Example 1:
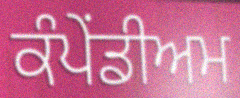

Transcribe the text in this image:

ਕੰਪੇਂਡੀਅਮ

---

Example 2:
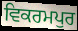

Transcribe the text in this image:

ਵਿਕਰਮਪੁਰ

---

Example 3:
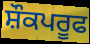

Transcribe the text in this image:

ਸ਼ੌਕਪਰੂਫ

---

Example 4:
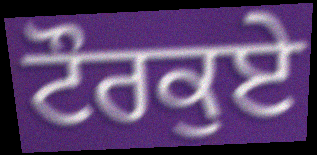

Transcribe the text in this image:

ਟੌਰਕੁਏ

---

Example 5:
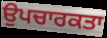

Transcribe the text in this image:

ਉਪਚਾਰਕਤਾ